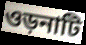
ওড়নাটি